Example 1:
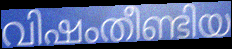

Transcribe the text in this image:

വിഷംതീണ്ടിയ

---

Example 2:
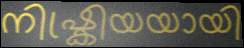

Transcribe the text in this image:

നിഷ്ക്രിയയായി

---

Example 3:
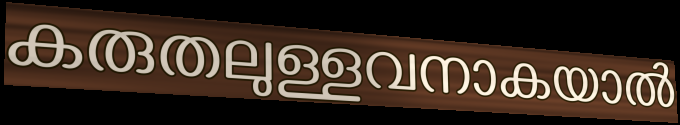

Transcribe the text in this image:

കരുതലുള്ളവനാകയാൽ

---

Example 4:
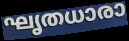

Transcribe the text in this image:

ഘൃതധാരാ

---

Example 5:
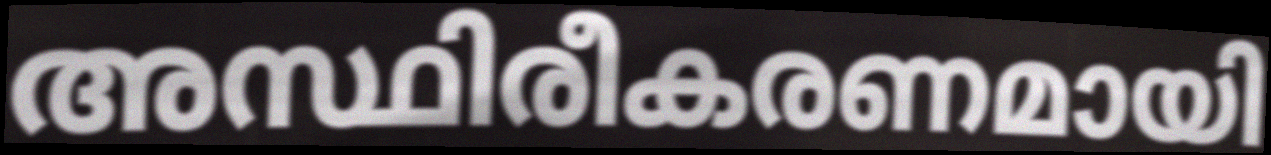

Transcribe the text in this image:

അസ്ഥിരീകരണമായി